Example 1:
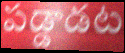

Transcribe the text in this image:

పడ్డాడట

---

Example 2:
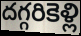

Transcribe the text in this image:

దగ్గరికెళ్లి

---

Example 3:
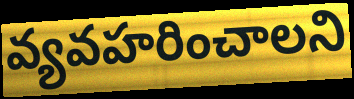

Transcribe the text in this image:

వ్యవహరించాలని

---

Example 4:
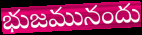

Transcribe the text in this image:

భుజమునందు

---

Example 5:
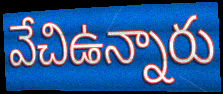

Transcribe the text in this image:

వేచిఉన్నారు